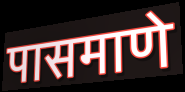
पासमाणे